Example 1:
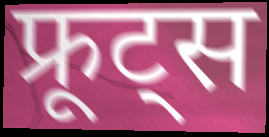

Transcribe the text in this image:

फ्रूट्स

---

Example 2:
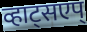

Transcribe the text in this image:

व्हाट्सएप्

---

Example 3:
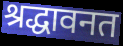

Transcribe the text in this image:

श्रद्धावनत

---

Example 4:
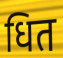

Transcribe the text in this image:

धित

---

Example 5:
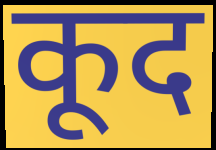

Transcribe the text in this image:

कूद